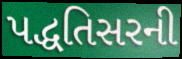
પદ્ધતિસરની